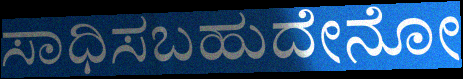
ಸಾಧಿಸಬಹುದೇನೋ